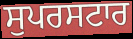
ਸੁਪਰਸਟਾਰ